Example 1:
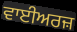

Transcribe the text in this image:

ਵਾਈਅਰਜ਼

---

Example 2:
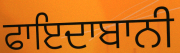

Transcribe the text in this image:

ਫਾਇਦਾਬਾਨੀ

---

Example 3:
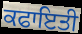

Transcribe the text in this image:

ਕਫਾਇਤੀ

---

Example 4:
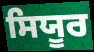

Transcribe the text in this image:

ਸਿਯੂਰ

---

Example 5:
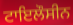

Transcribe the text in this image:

ਟਾਇਲੌਸੀਨ